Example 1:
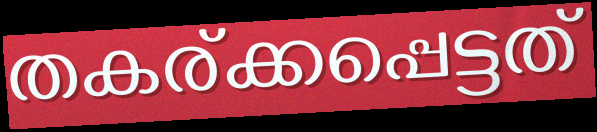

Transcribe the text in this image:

തകര്ക്കപ്പെട്ടത്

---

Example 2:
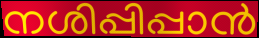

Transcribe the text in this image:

നശിപ്പിപ്പാൻ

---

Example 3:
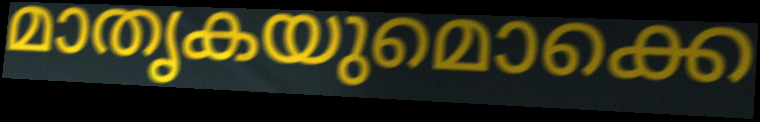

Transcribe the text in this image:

മാതൃകയുമൊക്കെ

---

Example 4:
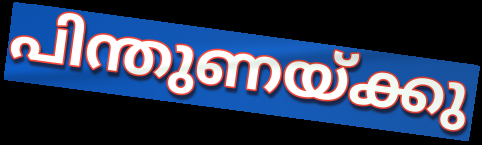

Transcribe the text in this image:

പിന്തുണയ്ക്കു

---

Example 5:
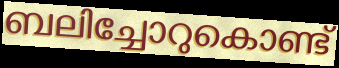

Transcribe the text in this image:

ബലിച്ചോറുകൊണ്ട്